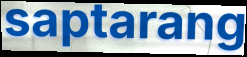
saptarang